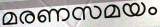
മരണസമയം